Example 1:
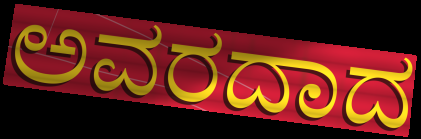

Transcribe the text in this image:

ಅವರದಾದ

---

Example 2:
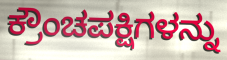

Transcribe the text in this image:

ಕ್ರೌಂಚಪಕ್ಷಿಗಳನ್ನು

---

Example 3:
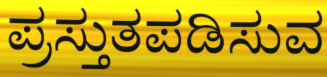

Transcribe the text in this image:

ಪ್ರಸ್ತುತಪಡಿಸುವ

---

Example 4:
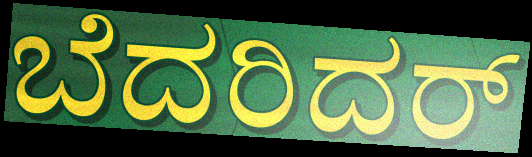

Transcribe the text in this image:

ಬೆದರಿದರ್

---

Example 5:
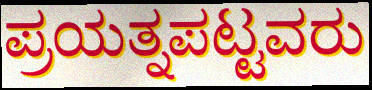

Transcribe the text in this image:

ಪ್ರಯತ್ನಪಟ್ಟವರು